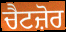
ਚੈਟਜ਼ੋਰ